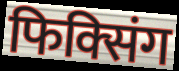
फिक्‍सिंग